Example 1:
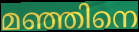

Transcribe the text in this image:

മഞ്ഞിനെ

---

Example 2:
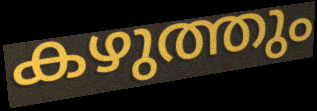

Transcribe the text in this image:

കഴുത്തും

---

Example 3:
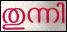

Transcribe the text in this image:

തുന്നി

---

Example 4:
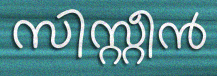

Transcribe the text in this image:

സിസ്റ്റീൻ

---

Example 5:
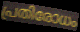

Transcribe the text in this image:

പ്രതിരോധം